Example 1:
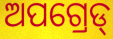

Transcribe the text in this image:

ଅପଗ୍ରେଡ୍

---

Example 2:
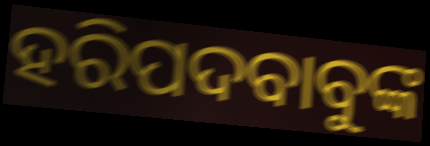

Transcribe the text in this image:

ହରିପଦବାବୁଙ୍କ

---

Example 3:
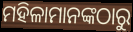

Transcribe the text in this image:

ମହିଳାମାନଙ୍କଠାରୁ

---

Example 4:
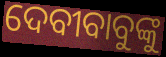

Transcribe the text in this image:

ଦେବୀବାବୁଙ୍କୁ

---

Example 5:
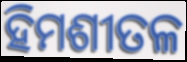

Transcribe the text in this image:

ହିମଶୀତଳ